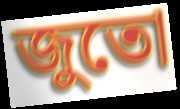
জুতো